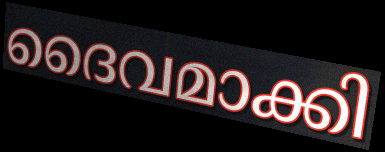
ദൈവമാക്കി